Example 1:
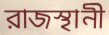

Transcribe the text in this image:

রাজস্থানী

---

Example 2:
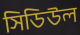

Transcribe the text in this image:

সিডিউল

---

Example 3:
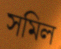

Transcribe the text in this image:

সমিল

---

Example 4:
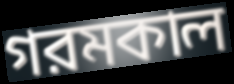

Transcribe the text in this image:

গরমকাল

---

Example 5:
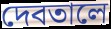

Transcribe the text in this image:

দেবতালে